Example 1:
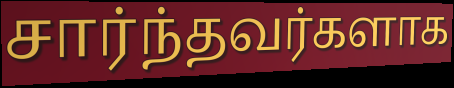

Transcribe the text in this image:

சார்ந்தவர்களாக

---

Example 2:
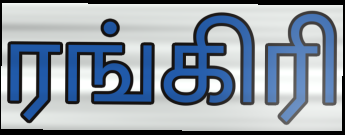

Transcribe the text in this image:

ரங்கிரி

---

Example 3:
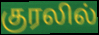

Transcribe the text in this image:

குரலில்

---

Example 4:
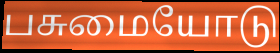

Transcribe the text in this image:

பசுமையோடு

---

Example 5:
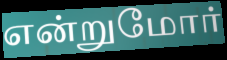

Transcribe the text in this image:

என்றுமோர்